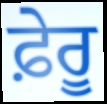
ਫ਼ੇਰੂ